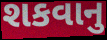
શકવાનુ